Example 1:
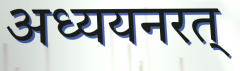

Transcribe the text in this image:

अध्ययनरत्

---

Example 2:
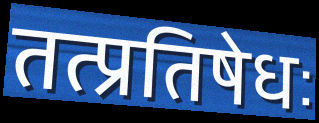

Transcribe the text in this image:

तत्प्रतिषेधः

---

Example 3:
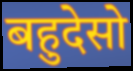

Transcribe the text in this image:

बहुदेसो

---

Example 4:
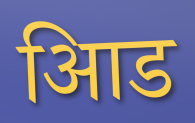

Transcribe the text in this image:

आिड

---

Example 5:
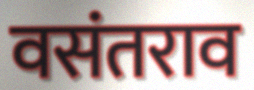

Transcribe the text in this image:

वसंतराव